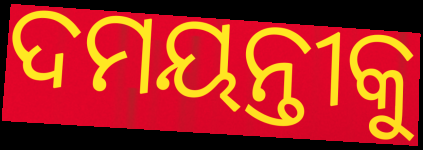
ଦମୟନ୍ତୀକୁ